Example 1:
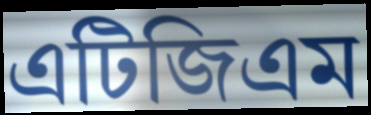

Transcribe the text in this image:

এটিজিএম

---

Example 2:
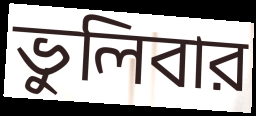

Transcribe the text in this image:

ভুলিবার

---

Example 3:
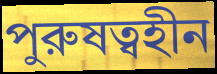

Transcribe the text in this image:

পুরুষত্বহীন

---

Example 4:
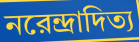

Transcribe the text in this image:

নরেন্দ্রাদিত্য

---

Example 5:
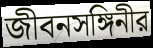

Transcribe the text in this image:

জীবনসঙ্গিনীর